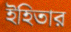
ইহিতার